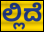
ಲ್ಲಿದೆ